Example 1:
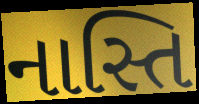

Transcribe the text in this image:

નાસ્તિ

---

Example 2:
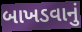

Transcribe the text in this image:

બાખડવાનું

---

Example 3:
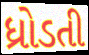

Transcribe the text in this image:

ધ્રોડતી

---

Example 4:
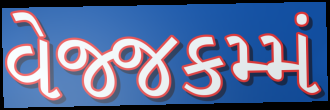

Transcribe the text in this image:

વેજ્જકમ્મં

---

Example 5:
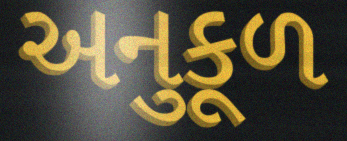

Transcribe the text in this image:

અનુકૂળ